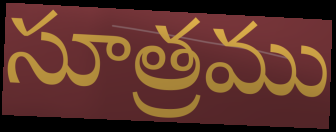
సూత్రము